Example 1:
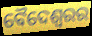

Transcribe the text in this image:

ବୈଦେଶ୍ୱରର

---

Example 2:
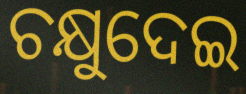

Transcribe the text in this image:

ଚକ୍ଷୁଦେଇ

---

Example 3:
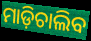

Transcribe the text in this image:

ମାଡ଼ିଚାଲିବ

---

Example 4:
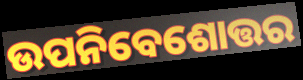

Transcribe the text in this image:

ଉପନିବେଶୋତ୍ତର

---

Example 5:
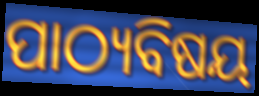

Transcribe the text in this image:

ପାଠ୍ୟବିଷୟ